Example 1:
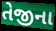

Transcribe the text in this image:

તેજીના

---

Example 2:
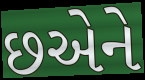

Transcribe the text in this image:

છએને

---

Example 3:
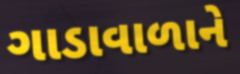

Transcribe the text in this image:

ગાડાવાળાને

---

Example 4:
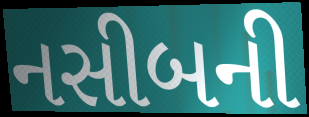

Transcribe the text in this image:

નસીબની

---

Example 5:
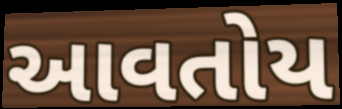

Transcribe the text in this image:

આવતોય